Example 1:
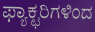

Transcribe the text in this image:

ಫ್ಯಾಕ್ಟರಿಗಳಿಂದ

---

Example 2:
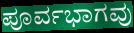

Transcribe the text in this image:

ಪೂರ್ವಭಾಗವು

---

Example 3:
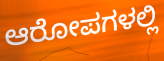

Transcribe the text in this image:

ಆರೋಪಗಳಲ್ಲಿ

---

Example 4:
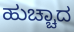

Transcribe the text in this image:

ಹುಚ್ಚಾದ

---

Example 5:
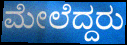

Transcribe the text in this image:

ಮೇಲೆದ್ದರು